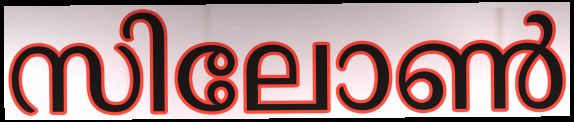
സിലോൺ